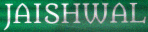
JAISHWAL